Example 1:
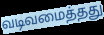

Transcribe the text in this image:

வடிவமைத்தது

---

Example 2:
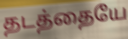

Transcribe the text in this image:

தடத்தையே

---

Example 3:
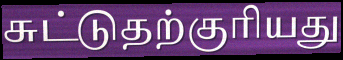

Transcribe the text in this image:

சுட்டுதற்குரியது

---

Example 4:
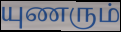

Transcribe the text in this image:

யுணரும்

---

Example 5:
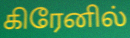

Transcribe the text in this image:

கிரேனில்